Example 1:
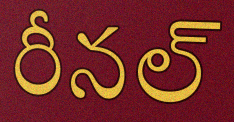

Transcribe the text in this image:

రీనల్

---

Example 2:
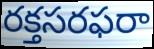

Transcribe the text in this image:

రక్తసరఫరా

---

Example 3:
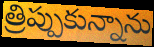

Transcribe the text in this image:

త్రిప్పుకున్నాను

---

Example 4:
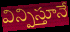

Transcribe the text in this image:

విన్పిస్తూనే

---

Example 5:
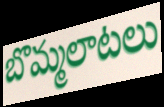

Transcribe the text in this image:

బొమ్మలాటలు